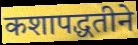
कशापद्धतीने